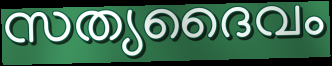
സത്യദൈവം